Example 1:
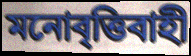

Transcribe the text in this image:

মনোবৃত্তিবাহী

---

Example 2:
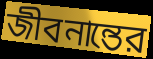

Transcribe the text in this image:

জীবনান্তের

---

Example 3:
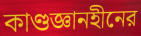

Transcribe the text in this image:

কাণ্ডজ্ঞানহীনের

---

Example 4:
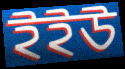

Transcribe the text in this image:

ইইউ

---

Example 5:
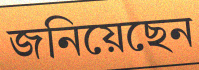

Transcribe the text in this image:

জনিয়েছেন